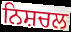
ਨਿਸ਼ਚਲ